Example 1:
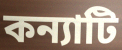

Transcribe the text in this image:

কন্যাটি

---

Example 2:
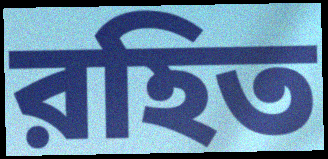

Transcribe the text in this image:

রহিত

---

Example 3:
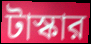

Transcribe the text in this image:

টাস্কার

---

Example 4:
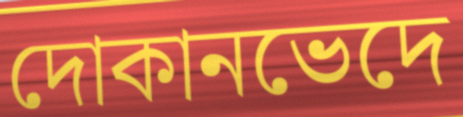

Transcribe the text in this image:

দোকানভেদে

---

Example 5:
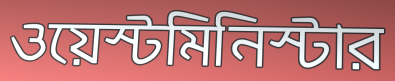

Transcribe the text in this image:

ওয়েস্টমিনিস্টার